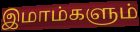
இமாம்களும்